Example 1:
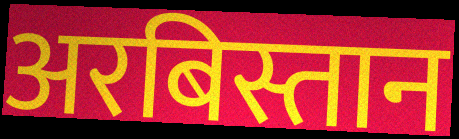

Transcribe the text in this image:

अरबिस्तान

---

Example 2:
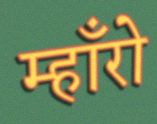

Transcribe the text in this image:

म्हाँरो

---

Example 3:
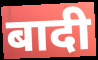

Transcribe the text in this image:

बादी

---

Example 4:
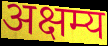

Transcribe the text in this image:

अक्षम्य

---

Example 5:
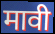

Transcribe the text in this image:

मावी